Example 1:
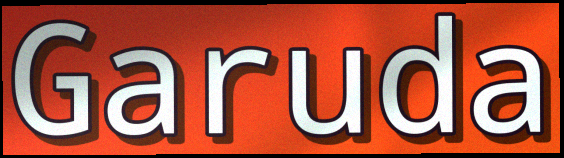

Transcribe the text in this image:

Garuda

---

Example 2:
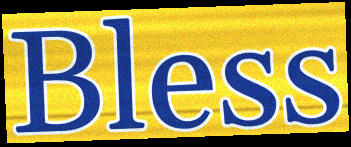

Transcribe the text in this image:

Bless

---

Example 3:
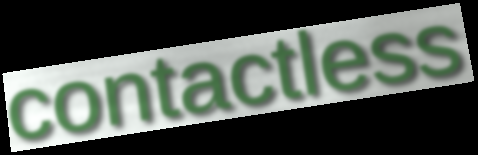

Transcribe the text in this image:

contactless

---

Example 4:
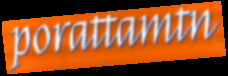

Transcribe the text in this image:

porattamtn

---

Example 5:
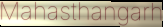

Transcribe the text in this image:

Mahasthangarh